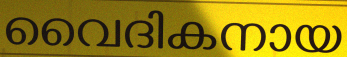
വൈദികനായ